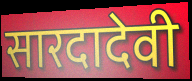
सारदादेवी